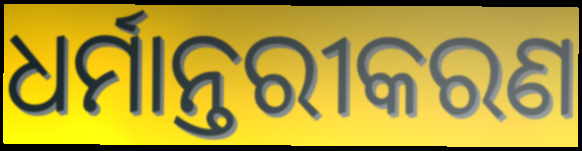
ଧର୍ମାନ୍ତରୀକରଣ